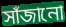
সাঁজানো